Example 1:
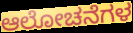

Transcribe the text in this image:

ಆಲೋಚನೆಗಳ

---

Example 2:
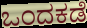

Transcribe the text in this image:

ಒಂದಕಡೆ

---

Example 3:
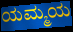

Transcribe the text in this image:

ಯಮ್ಮಯ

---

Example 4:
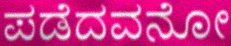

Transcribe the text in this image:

ಪಡೆದವನೋ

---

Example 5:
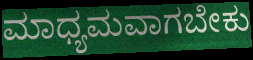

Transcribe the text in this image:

ಮಾಧ್ಯಮವಾಗಬೇಕು